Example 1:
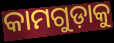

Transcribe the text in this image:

କାମଗୁଡ଼ାକୁ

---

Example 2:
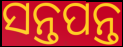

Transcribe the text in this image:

ସନ୍ତପନ୍ତ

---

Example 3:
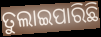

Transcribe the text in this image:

ତୁଲାଇପାରିଛି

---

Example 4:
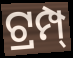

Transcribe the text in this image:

ଟ୍ରମ୍ପ୍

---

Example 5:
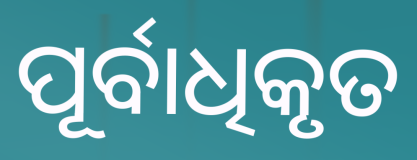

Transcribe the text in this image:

ପୂର୍ବାଧିକୃତ